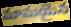
మామయైన